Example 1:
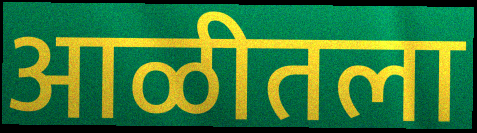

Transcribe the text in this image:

आळीतला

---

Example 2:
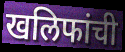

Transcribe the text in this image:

खलिफांची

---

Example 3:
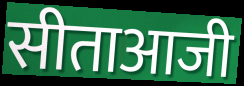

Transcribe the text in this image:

सीताआजी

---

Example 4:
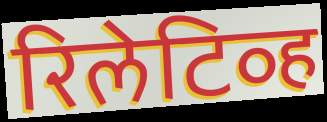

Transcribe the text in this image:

रिलेटिव्ह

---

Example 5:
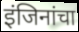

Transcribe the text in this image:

इंजिनांचा